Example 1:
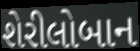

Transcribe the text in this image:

શેરીલોબાન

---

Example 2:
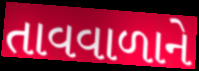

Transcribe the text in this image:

તાવવાળાને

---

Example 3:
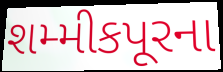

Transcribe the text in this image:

શમ્મીકપૂરના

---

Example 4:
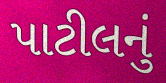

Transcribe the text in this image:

પાટીલનું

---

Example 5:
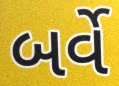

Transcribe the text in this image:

બર્વે